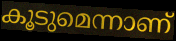
കൂടുമെന്നാണ്